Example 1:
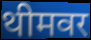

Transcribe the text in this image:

थीमवर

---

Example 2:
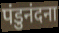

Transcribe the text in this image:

पंडुनंदना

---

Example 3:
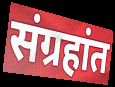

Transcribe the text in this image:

संग्रहांत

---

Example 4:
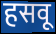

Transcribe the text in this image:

हसवू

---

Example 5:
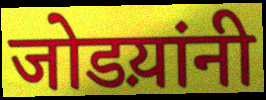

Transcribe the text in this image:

जोडय़ांनी